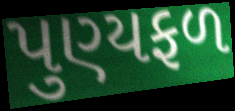
પુણ્યફળ